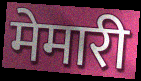
मेमारी